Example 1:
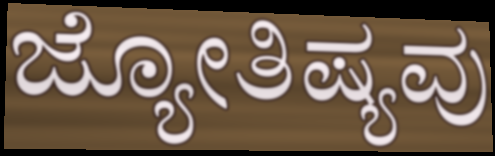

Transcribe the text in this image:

ಜ್ಯೋತಿಷ್ಯವು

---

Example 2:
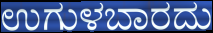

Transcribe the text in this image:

ಉಗುಳಬಾರದು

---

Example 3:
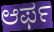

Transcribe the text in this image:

ಆರ್ಫ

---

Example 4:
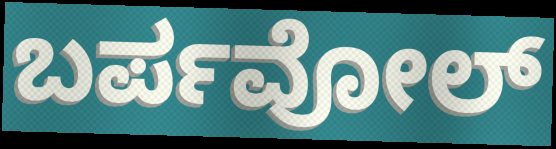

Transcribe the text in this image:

ಬರ್ಪವೋಲ್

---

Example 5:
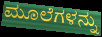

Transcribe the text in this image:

ಮೂಲೆಗಳನ್ನು